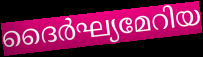
ദൈർഘ്യമേറിയ